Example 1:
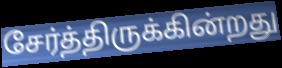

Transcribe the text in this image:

சேர்த்திருக்கின்றது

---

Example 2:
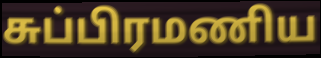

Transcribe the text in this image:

சுப்பிரமணிய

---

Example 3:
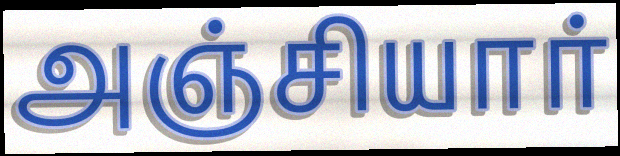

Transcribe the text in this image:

அஞ்சியார்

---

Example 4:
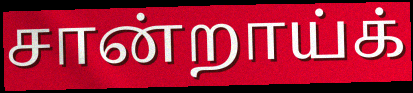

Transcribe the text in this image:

சான்றாய்க்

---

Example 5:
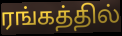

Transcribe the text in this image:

ரங்கத்தில்